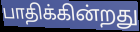
பாதிக்கின்றது